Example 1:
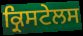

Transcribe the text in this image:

ਕ੍ਰਿਸਟੇਲਸ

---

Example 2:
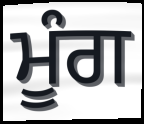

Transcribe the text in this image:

ਮੂੰਗ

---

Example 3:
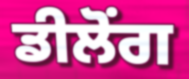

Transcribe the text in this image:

ਡੀਲੋਂਗ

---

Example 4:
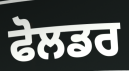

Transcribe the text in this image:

ਫੋਲਡਰ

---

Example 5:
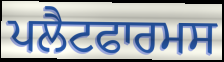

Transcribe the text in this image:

ਪਲੈਟਫਾਰਮਸ